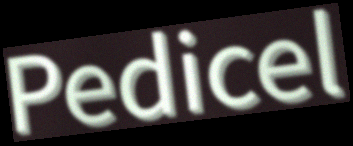
Pedicel